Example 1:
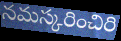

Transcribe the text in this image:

నమస్కరించిరి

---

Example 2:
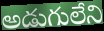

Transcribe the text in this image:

అడుగులేని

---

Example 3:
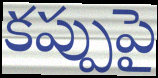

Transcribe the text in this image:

కప్పుపై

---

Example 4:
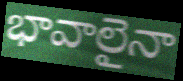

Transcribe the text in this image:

భావాలైనా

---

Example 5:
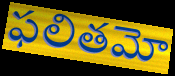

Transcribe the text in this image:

ఫలితమో